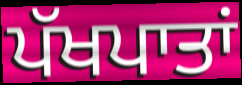
ਪੱਖਪਾਤਾਂ